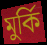
মুর্কি